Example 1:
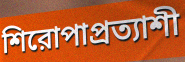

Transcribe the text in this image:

শিরোপাপ্রত্যাশী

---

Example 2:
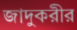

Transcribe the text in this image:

জাদুকরীর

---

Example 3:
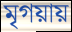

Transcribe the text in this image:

মৃগয়ায়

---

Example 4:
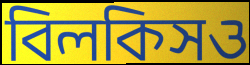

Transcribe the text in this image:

বিলকিসও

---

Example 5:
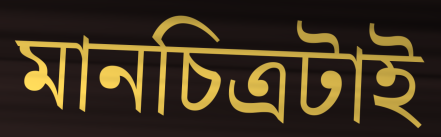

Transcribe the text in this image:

মানচিত্রটাই